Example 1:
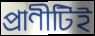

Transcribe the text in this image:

প্রাণীটিই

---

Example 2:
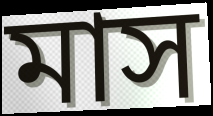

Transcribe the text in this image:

মাস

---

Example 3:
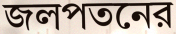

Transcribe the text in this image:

জলপতনের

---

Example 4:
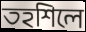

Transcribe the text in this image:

তহশিলে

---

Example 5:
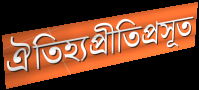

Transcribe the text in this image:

ঐতিহ্যপ্রীতিপ্রসূত